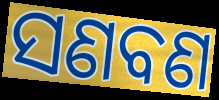
ସଣବଣ